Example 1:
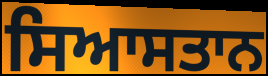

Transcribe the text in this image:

ਸਿਆਸਤਾਨ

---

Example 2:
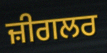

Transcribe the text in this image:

ਜ਼ੀਗਲਰ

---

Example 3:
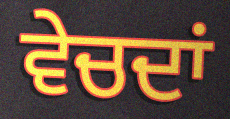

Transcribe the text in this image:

ਵੇਚਦਾਂ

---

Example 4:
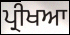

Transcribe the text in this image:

ਪ੍ਰੀਖਆ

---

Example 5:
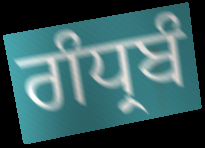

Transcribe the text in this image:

ਗੰਧ੍ਰਬੰ